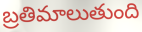
బ్రతిమాలుతుంది